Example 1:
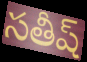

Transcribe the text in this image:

సతీష్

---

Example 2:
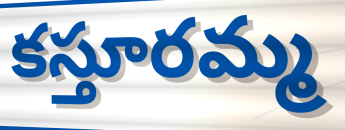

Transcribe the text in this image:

కస్తూరమ్మ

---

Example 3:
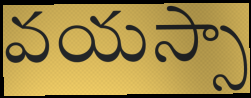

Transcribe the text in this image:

వయస్సా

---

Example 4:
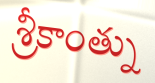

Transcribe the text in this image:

శ్రీకాంత్ను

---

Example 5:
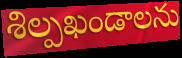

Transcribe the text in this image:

శిల్పఖండాలను